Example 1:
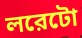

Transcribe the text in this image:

লরেটো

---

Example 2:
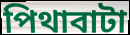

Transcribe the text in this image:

পিথাবাটা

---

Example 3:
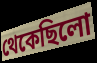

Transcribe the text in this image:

থেকেছিলো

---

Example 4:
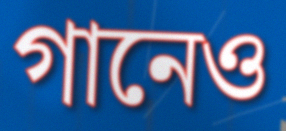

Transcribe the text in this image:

গানেও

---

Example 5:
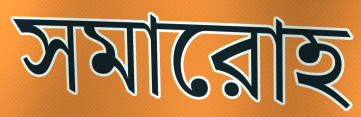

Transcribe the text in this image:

সমারোহ